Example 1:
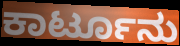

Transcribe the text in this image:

ಕಾರ್ಟೂನು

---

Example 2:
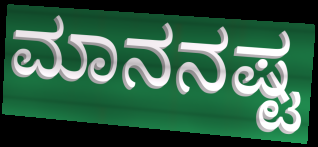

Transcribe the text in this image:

ಮಾನನಷ್ಟ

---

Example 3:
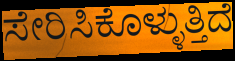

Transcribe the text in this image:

ಸೇರಿಸಿಕೊಳ್ಳುತ್ತಿದೆ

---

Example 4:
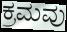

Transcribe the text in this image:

ಕ್ರಮವು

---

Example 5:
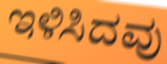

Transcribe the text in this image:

ಇಳಿಸಿದವು